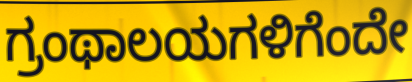
ಗ್ರಂಥಾಲಯಗಳಿಗೆಂದೇ